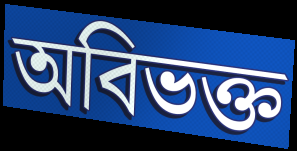
অবিভক্ত